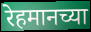
रेहमानच्या